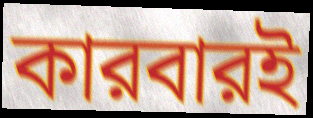
কারবারই